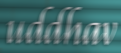
uddhav